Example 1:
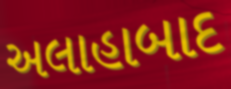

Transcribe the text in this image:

અલાહાબાદ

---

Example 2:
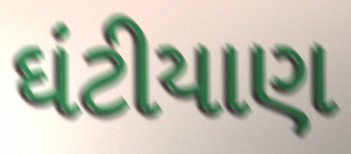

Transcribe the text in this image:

ઘંટીયાણ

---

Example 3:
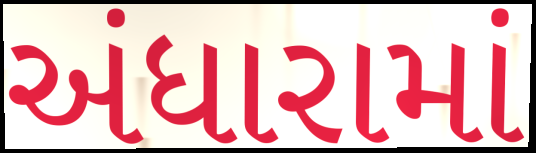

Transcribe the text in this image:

અંધારામાં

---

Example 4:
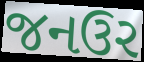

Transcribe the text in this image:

જનઉર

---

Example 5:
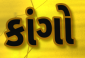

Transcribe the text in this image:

કાંગો